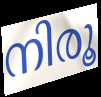
നിരൂ